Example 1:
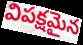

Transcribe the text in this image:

విపక్షమైన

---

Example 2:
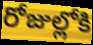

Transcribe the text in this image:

రోజుల్లోకి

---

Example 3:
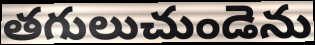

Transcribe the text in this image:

తగులుచుండెను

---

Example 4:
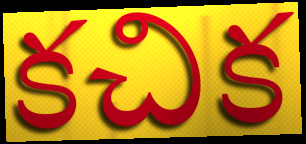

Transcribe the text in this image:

కచిక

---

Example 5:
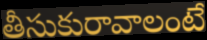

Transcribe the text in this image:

తీసుకురావాలంటే